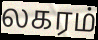
லகரம்